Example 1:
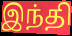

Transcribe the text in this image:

இந்தி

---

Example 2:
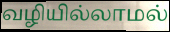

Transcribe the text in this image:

வழியில்லாமல்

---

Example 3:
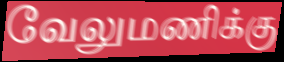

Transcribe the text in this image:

வேலுமணிக்கு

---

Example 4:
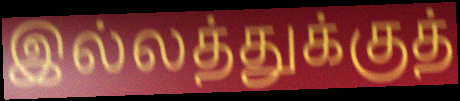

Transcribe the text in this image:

இல்லத்துக்குத்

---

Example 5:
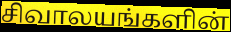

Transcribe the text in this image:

சிவாலயங்களின்